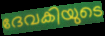
ദേവകിയുടെ